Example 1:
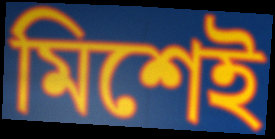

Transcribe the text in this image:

মিশেই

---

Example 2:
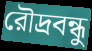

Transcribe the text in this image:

রৌদ্রবন্ধু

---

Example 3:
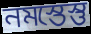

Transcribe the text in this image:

নমস্তেস্তু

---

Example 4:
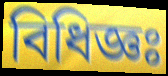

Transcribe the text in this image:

বিধিজ্ঞঃ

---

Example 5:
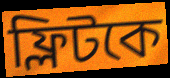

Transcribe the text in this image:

ফ্লিটকে